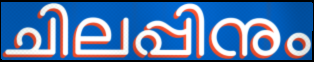
ചിലപ്പിനും